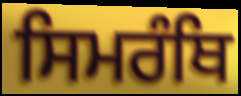
ਸਿਮਰੰਥਿ